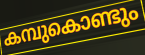
കമ്പുകൊണ്ടും